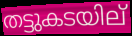
തട്ടുകടയില്